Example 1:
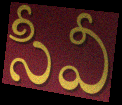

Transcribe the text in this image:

సీవీ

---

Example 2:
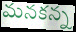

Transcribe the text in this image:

మనకన్న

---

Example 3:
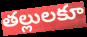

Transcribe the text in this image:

తల్లులకూ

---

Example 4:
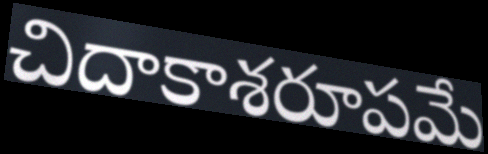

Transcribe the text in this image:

చిదాకాశరూపమే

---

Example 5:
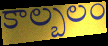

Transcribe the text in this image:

కాల్బలం